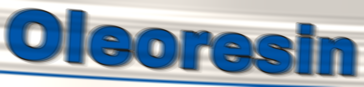
Oleoresin